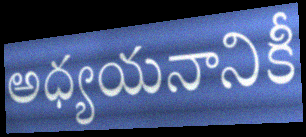
అధ్యయనానికీ